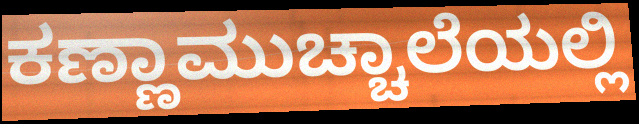
ಕಣ್ಣಾಮುಚ್ಚಾಲೆಯಲ್ಲಿ